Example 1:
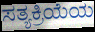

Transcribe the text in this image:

ಸತ್ಯಕ್ರಿಯೆಯ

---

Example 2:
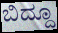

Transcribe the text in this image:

ಬಿದ್ದೂ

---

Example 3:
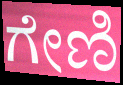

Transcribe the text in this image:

ಗೇಣಿ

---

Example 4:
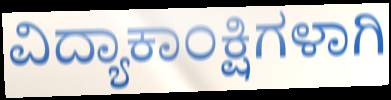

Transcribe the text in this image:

ವಿದ್ಯಾಕಾಂಕ್ಷಿಗಳಾಗಿ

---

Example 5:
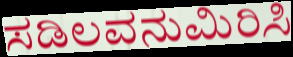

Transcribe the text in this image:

ಸಡಿಲವನುಮಿರಿಸಿ